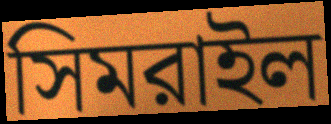
সিমরাইল